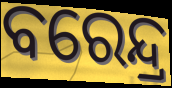
ବରେନ୍ଦ୍ର